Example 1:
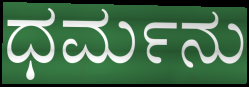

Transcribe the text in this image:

ಧರ್ಮನು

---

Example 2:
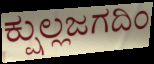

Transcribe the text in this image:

ಕ್ಷುಲ್ಲಜಗದಿಂ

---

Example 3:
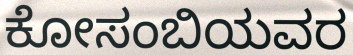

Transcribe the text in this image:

ಕೋಸಂಬಿಯವರ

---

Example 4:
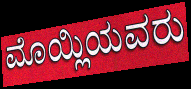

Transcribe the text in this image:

ಮೊಯ್ಲಿಯವರು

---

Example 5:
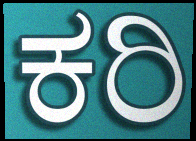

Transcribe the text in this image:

ಕರಿ